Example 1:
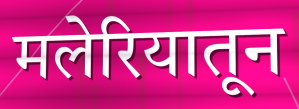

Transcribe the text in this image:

मलेरियातून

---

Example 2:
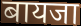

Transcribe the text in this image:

बायजा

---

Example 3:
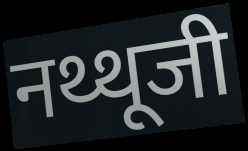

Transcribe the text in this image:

नथ्थूजी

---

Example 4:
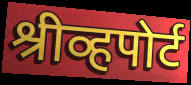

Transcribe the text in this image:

श्रीव्हपोर्ट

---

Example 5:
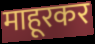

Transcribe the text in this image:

माहूरकर